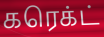
கரெக்ட்